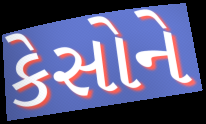
કેસોને